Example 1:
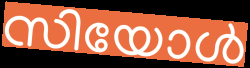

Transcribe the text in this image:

സിയോൾ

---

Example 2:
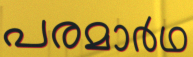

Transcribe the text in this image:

പരമാർഥ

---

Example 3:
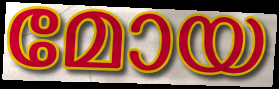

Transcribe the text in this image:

മോയ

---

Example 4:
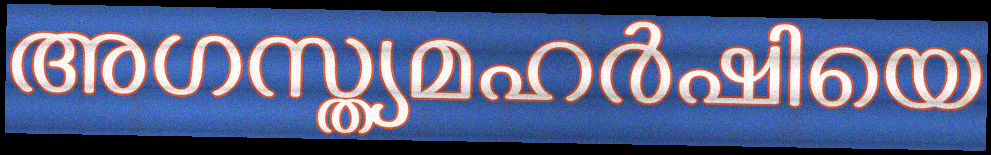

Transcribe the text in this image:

അഗസ്ത്യമഹർഷിയെ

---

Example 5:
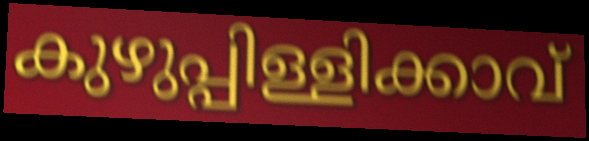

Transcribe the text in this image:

കുഴുപ്പിള്ളിക്കാവ്